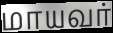
மாயவர்